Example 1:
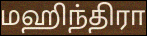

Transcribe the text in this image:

மஹிந்திரா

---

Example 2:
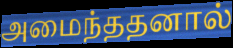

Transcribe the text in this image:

அமைந்ததனால்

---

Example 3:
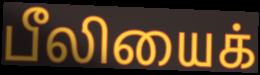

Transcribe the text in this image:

பீலியைக்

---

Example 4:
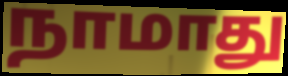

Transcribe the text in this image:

நாமாது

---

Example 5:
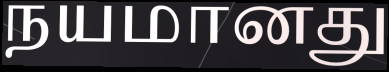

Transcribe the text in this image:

நயமானது